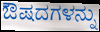
ಔಷದಗಳನ್ನು